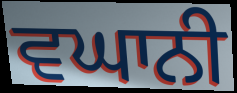
ਵਘਾਨੀ